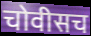
चोवीसच